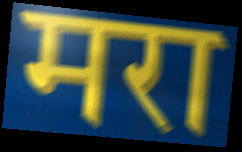
मरा